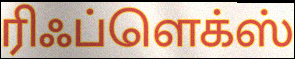
ரிஃப்ளெக்ஸ்